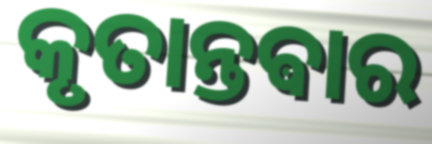
କୃତାନ୍ତଵାର